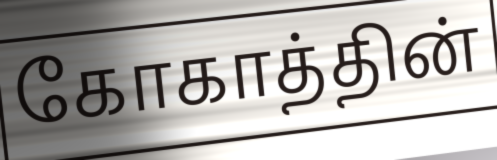
கோகாத்தின்